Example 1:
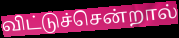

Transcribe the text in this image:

விட்டுச்சென்றால்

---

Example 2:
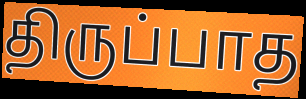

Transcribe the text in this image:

திருப்பாத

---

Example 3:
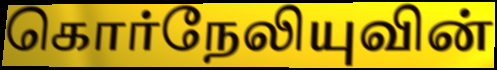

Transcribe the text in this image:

கொர்நேலியுவின்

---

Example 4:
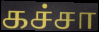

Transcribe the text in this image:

கச்சா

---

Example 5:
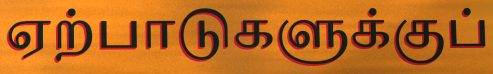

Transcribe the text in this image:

ஏற்பாடுகளுக்குப்